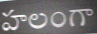
హలంగా